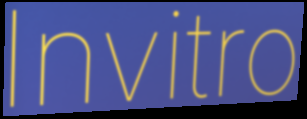
Invitro